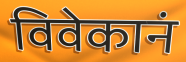
विवेकानं